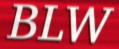
BLW